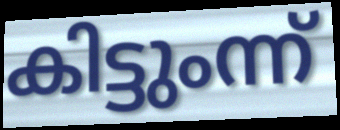
കിട്ടുംന്ന്